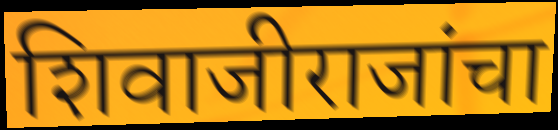
शिवाजीराजांचा